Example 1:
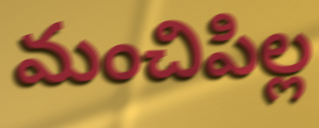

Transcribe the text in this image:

మంచిపిల్ల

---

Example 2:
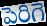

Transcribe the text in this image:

పెరిగె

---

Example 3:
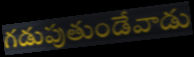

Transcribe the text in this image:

గడుపుతుండేవాడు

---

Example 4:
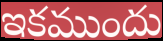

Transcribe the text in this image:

ఇకముందు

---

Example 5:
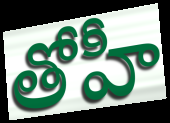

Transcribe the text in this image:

తోహీ